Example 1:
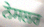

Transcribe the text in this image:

ਨੇਸਲਰ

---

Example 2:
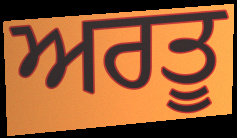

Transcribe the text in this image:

ਅਰਤੂ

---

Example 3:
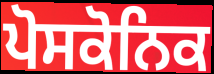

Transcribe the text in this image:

ਪੋਸਕੋਨਿਕ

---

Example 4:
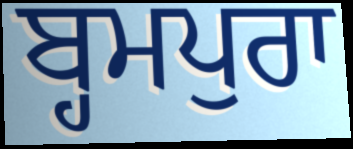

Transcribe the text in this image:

ਬ੍ਹਮਪੁਰਾ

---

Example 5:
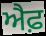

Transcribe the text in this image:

ਐਫ਼